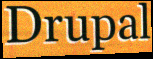
Drupal